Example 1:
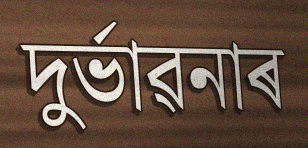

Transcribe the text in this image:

দুৰ্ভাৱনাৰ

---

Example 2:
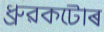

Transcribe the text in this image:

ধ্ৰুৱকটোৰ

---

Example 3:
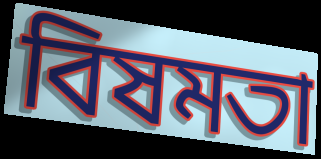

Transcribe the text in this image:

বিষমতা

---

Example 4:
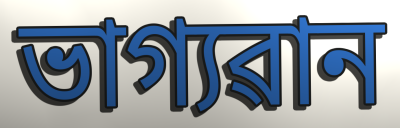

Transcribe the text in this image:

ভাগ্যৱান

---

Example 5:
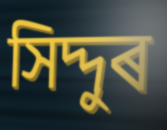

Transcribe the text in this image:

সিদ্দুৰ